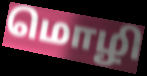
மொழி